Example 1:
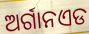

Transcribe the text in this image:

ଅର୍ଗାନଏଡ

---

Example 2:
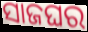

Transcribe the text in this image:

ସାଜଘର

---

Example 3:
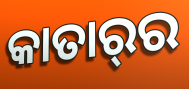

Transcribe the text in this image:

କାତାର୍‌ର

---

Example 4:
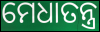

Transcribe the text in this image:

ମେଧାତନ୍ତ୍ର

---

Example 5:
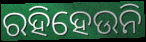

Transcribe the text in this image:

ରହିହେଉନି